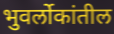
भुवर्लोकांतील